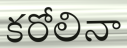
కరోలినా